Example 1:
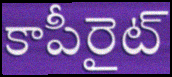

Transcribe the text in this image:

కాపీరైట్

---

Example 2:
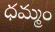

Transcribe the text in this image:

ధమ్మం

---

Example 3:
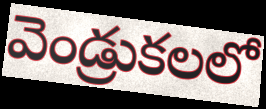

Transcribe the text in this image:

వెండ్రుకలలో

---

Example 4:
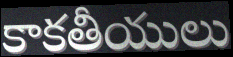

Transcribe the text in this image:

కాకతీయులు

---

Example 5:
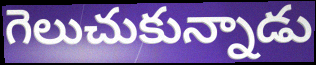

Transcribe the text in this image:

గెలుచుకున్నాడు